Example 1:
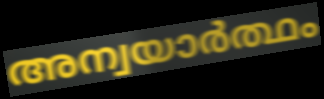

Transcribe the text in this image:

അന്വയാർത്ഥം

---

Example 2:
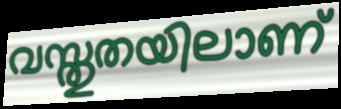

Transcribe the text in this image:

വസ്തുതയിലാണ്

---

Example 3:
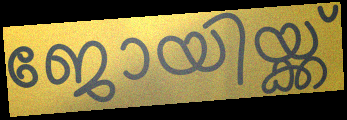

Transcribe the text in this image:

ജോയിയ്ക്ക്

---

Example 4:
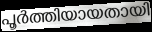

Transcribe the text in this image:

പൂർത്തിയായതായി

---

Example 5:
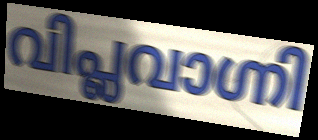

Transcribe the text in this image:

വിപ്ലവാഗ്നി